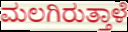
ಮಲಗಿರುತ್ತಾಳೆ